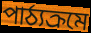
পাঠ্যক্রমে